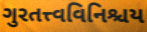
ગુરતત્ત્વવિનિશ્ચય